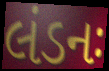
લંડનઃ